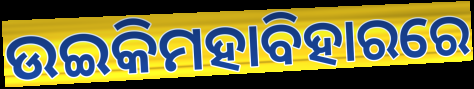
ଉଇକିମହାବିହାରରେ